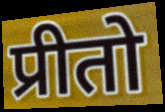
प्रीतो